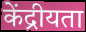
केंद्रीयता